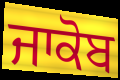
ਜਾਕੋਬ